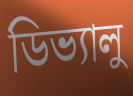
ডিভ্যালু